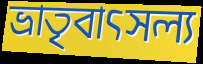
ভ্রাতৃবাৎসল্য